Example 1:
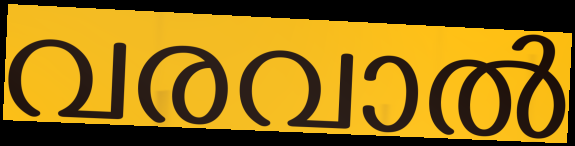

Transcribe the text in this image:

വരവാൽ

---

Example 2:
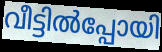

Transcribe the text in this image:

വീട്ടിൽപ്പോയി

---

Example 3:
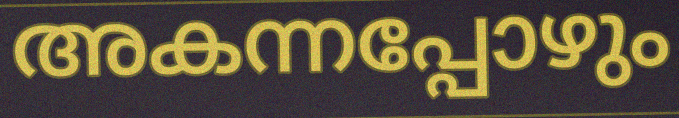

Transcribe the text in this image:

അകന്നപ്പോഴും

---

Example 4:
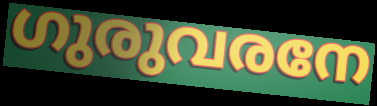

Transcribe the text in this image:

ഗുരുവരനേ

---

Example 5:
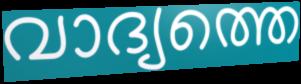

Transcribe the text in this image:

വാദ്യത്തെ